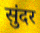
सुंदर